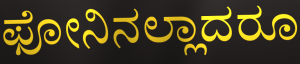
ಫೋನಿನಲ್ಲಾದರೂ